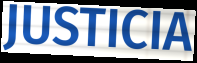
JUSTICIA